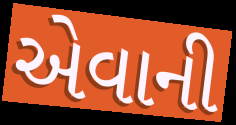
એવાની